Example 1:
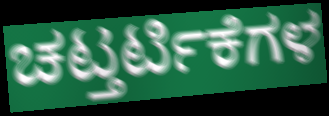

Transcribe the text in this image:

ಚಟ್ತರ್ಟಿಕೆಗಳ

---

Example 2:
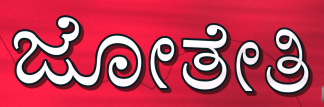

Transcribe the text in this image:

ಜೋತೇತಿ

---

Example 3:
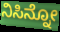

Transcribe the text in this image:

ನಿಸಿನ್ನೋ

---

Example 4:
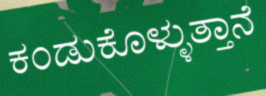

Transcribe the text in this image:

ಕಂಡುಕೊಳ್ಳುತ್ತಾನೆ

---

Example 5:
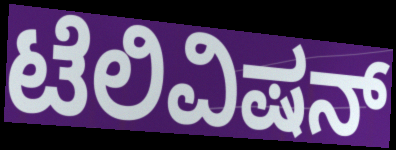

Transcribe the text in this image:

ಟೆಲಿವಿಷನ್